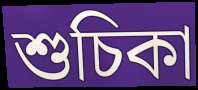
শুচিকা